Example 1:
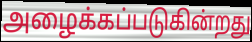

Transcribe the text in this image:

அழைக்கப்படுகின்றது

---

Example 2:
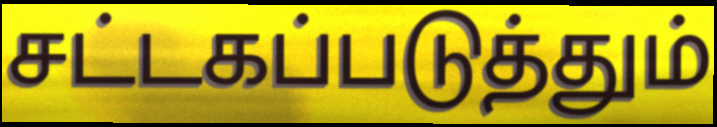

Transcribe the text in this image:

சட்டகப்படுத்தும்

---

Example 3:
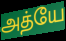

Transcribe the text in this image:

அத்யே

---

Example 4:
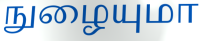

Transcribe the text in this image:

நுழையுமா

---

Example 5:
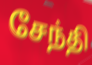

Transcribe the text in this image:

சேந்தி